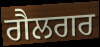
ਗੈਲਗਰ